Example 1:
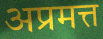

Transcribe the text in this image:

अप्रमत्त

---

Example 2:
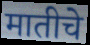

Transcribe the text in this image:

मातीचे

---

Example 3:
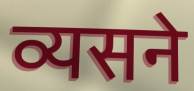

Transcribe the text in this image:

व्यसने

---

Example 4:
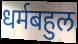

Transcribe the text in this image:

धर्मबहुल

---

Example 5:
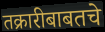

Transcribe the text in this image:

तक्रारीबाबतचे